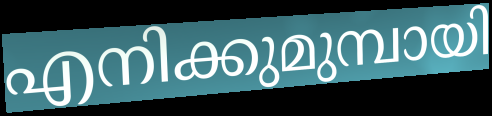
എനിക്കുമുമ്പായി